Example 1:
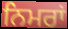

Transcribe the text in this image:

ਨਿਮਰਾਂ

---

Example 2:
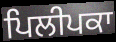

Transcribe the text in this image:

ਪਿਲੀਪਕਾ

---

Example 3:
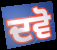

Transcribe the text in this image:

ਦਵੋ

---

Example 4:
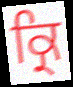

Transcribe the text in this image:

ਕ੍ਰਿ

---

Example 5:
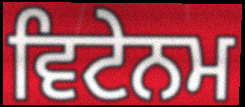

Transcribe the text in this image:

ਵਿਟੇਨਮ